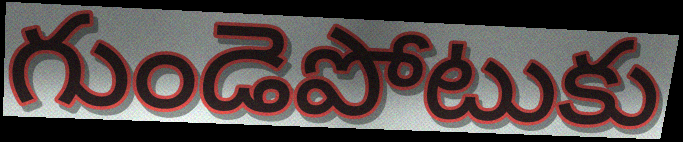
గుండెపోటుకు